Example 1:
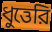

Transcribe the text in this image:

ধুত্তেরি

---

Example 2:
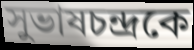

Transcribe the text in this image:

সুভাষচন্দ্রকে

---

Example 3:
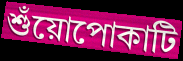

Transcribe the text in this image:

শুঁয়োপোকাটি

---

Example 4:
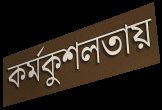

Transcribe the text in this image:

কর্মকুশলতায়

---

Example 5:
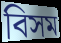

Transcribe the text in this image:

বিসম